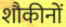
शौकीनों